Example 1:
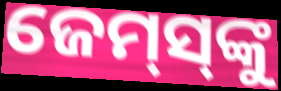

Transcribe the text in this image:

ଜେମ୍‌ସ୍‌ଙ୍କୁ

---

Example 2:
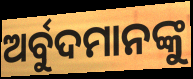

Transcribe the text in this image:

ଅର୍ବୁଦମାନଙ୍କୁ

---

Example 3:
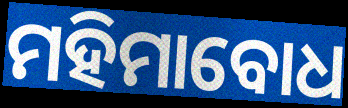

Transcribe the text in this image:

ମହିମାବୋଧ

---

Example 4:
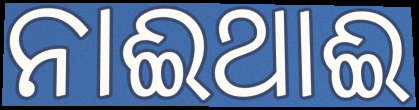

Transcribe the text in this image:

ନାଈଥାଈ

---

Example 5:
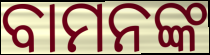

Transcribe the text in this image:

ବାମନଙ୍କ